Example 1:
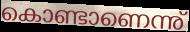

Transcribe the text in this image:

കൊണ്ടാണെന്നു്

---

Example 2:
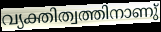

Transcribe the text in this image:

വ്യക്തിത്വത്തിനാണു്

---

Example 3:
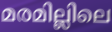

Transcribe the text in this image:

മരമില്ലിലെ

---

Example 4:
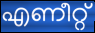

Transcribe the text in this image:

എണീറ്റ്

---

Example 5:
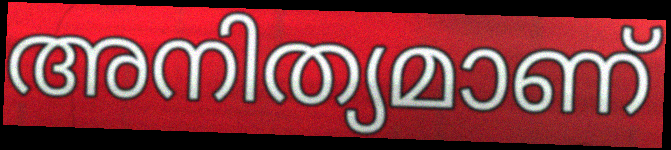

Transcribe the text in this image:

അനിത്യമാണ്